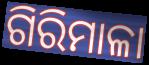
ଗିରିମାଳା